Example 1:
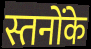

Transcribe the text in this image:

स्तनोंके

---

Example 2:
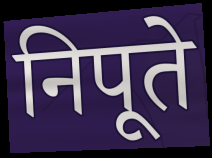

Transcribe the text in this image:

निपूते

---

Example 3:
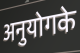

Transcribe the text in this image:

अनुयोगके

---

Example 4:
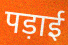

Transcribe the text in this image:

पड़ाई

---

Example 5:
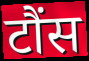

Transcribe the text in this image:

टौंस